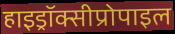
हाइड्रॉक्सीप्रोपाइल